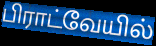
பிராட்வேயில்